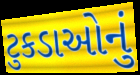
ટુકડાઓનું